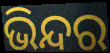
ଭିନ୍ଦର